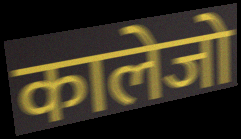
कालेजो